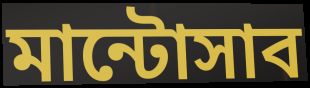
মান্টোসাব